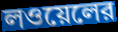
লওয়েলের